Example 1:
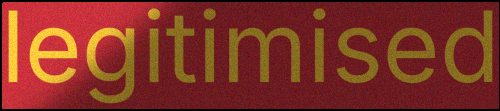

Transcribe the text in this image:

legitimised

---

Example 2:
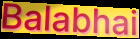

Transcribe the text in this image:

Balabhai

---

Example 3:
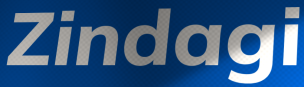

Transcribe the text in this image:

Zindagi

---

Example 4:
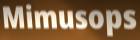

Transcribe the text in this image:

Mimusops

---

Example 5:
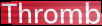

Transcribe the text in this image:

Thromb